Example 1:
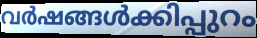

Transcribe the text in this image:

വർഷങ്ങൾക്കിപ്പുറം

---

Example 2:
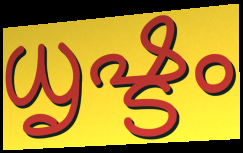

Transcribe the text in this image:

ധൃഷ്ടം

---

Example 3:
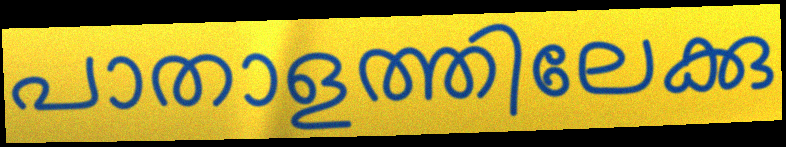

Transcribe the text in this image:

പാതാളത്തിലേക്കു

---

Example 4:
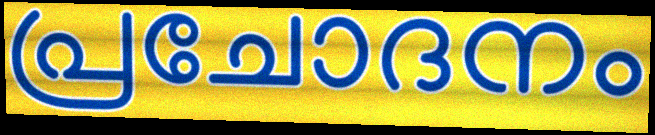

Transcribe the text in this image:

പ്രചോദനം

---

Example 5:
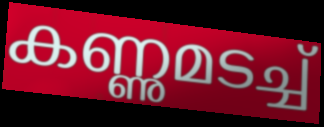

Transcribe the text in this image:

കണ്ണുമടച്ച്